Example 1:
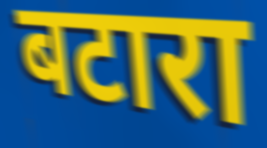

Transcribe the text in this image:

बटारा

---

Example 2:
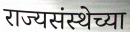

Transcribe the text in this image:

राज्यसंस्थेच्या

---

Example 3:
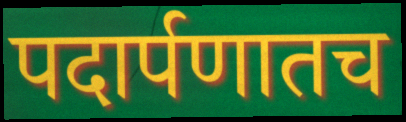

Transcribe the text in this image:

पदार्पणातच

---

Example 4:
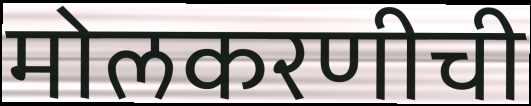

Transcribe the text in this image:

मोलकरणीची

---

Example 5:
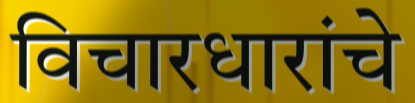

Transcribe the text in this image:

विचारधारांचे